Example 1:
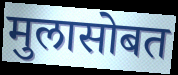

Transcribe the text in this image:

मुलासोबत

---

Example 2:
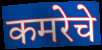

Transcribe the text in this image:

कमरेचे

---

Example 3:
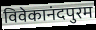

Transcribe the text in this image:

विवेकानंदपुरम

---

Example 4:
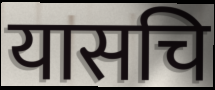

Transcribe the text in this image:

यासचि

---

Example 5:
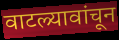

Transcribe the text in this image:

वाटल्यावांचून